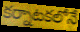
కర్నాటకలోనే